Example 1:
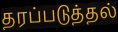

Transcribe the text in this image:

தரப்படுத்தல்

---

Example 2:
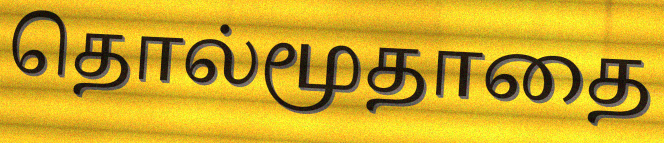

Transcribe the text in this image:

தொல்மூதாதை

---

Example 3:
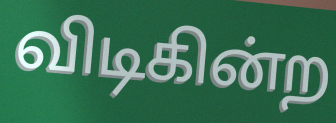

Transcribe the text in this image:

விடிகின்ற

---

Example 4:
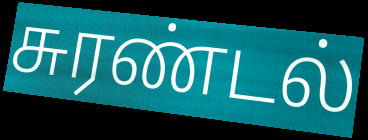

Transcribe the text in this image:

சுரண்டல்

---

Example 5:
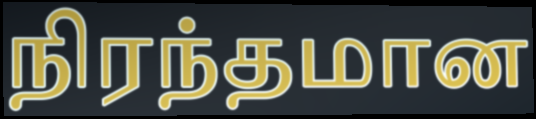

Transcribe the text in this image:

நிரந்தமான